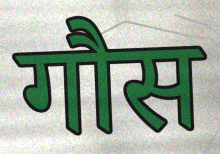
गौस